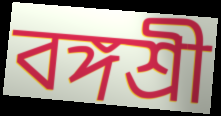
বঙ্গশ্রী